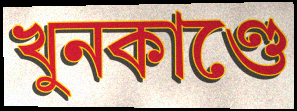
খুনকাণ্ডে